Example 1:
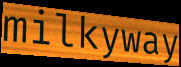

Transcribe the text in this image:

milkyway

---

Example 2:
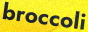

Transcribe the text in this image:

broccoli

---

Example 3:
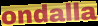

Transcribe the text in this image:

ondalla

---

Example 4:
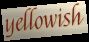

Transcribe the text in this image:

yellowish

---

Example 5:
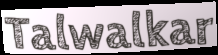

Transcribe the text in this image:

Talwalkar